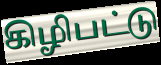
கிழிபட்டு